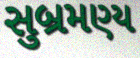
સુબ્રમણ્ય